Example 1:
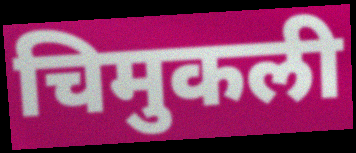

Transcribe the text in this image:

चिमुकली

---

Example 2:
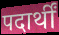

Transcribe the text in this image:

पदार्थीं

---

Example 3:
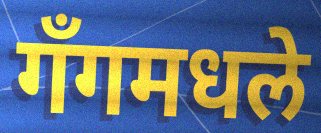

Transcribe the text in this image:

गँगमधले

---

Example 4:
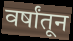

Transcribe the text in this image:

वर्षांतून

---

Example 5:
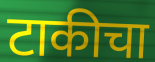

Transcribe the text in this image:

टाकीचा